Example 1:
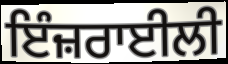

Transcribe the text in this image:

ਇੰਜ਼ਰਾਈਲੀ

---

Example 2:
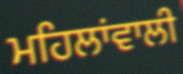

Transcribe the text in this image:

ਮਹਿਲਾਂਵਾਲੀ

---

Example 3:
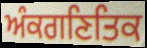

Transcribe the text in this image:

ਅੰਕਗਣਿਤਿਕ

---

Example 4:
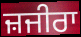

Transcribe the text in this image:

ਜ਼ਜੀਰਾ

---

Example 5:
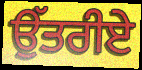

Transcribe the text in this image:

ਉੱਤਰੀਏ